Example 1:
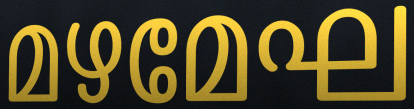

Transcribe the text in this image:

മഴമേഘ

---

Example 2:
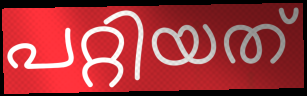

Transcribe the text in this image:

പറ്റിയത്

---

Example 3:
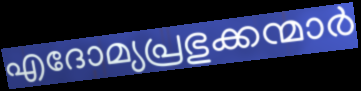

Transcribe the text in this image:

എദോമ്യപ്രഭുക്കന്മാർ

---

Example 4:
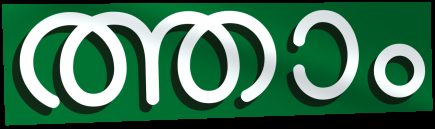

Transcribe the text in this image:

ത്താം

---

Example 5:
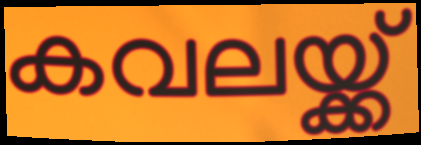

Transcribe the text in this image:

കവലയ്ക്ക്